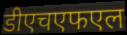
डीएचएफएल